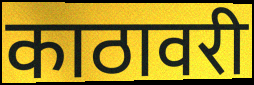
काठावरी